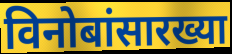
विनोबांसारख्या